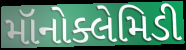
મૉનોક્લેમિડી